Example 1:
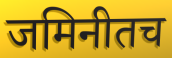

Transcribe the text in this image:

जमिनीतच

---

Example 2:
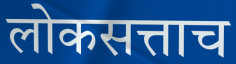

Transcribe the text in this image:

लोकसत्ताच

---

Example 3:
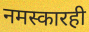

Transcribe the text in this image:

नमस्कारही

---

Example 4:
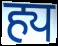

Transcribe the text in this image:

ह्य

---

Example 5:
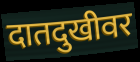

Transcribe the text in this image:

दातदुखीवर